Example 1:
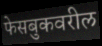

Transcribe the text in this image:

फेसबुकवरील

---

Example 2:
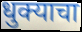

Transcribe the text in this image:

धुक्याचा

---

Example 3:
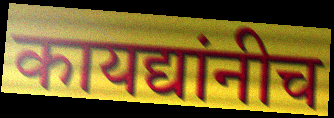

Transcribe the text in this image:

कायद्यांनीच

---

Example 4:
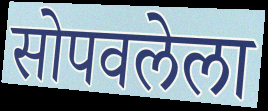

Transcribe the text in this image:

सोपवलेला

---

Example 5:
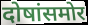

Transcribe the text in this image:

दोषांसमोर